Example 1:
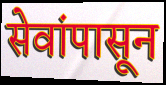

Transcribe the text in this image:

सेवांपासून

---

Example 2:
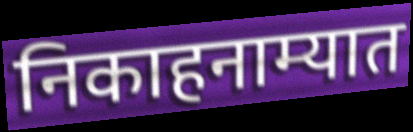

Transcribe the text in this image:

निकाहनाम्यात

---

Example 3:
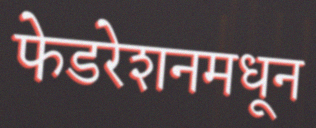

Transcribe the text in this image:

फेडरेशनमधून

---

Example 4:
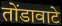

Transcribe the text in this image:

तोंडावाटे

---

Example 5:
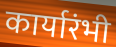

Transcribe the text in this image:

कार्यारंभी